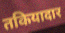
तकियादार